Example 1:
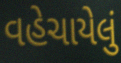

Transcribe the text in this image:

વહેચાયેલું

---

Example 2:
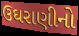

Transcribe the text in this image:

ઉઘરાણીનો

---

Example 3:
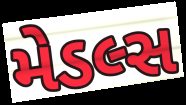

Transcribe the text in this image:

મેડલ્સ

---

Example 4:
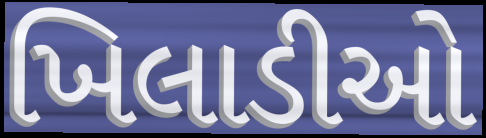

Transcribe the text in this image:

ખિલાડીઓ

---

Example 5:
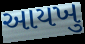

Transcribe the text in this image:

આયખુ